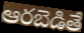
ఆరబెడితే